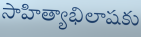
సాహిత్యాభిలాషకు